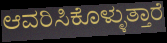
ಆವರಿಸಿಕೊಳ್ಳುತ್ತಾರೆ